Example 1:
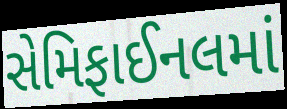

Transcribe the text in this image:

સેમિફાઈનલમાં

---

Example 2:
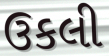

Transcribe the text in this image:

ઉકલી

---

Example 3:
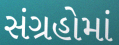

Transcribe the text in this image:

સંગ્રહોમાં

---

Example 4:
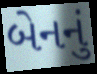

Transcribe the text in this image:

બેનનું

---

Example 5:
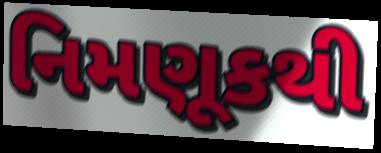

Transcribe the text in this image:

નિમણૂકથી